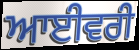
ਆਈਵਰੀ